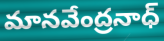
మానవేంద్రనాధ్